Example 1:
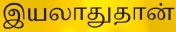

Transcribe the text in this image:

இயலாதுதான்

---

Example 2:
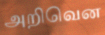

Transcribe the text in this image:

அறிவென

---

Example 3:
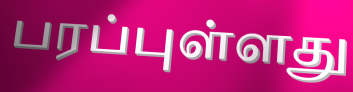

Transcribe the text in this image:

பரப்புள்ளது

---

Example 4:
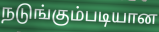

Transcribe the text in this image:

நடுங்கும்படியான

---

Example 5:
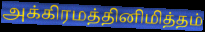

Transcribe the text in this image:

அக்கிரமத்தினிமித்தம்